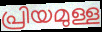
പ്രിയമുള്ള